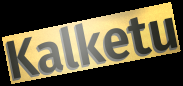
Kalketu